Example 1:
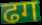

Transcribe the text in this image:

ढग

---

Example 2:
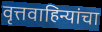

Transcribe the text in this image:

वृत्तवाहिन्यांचा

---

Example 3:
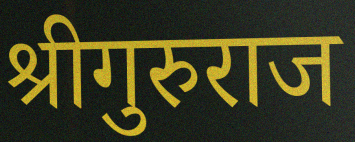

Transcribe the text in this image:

श्रीगुरुराज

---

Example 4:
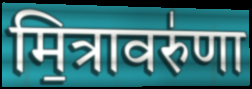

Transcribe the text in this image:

मि॒त्रावरु॑णा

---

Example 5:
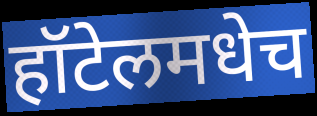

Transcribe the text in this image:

हॉटेलमधेच